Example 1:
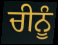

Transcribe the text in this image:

ਚੀਨੂੰ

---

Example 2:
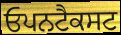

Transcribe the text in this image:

ਓਪਨਟੈਕਸਟ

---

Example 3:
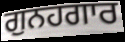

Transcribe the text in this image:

ਗੁਨਹਗਾਰ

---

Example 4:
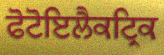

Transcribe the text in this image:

ਫੋਟੋਇਲੈਕਟ੍ਰਿਕ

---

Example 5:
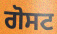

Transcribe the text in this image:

ਗੋਸਟ